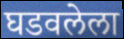
घडवलेला